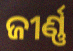
ଜୀର୍ଣ୍ଣ